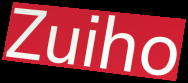
Zuiho